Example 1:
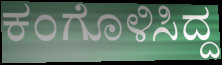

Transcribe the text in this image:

ಕಂಗೊಳಿಸಿದ್ದ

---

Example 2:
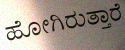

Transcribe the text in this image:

ಹೋಗಿರುತ್ತಾರೆ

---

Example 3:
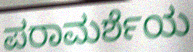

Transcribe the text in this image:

ಪರಾಮರ್ಶೆಯ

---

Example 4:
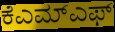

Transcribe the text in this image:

ಕೆಎಮ್ಎಫ್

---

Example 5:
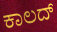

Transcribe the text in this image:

ಕಾಲದ್